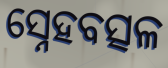
ସ୍ନେହବତ୍ସଳ